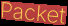
Packet